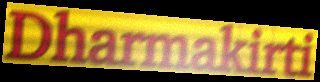
Dharmakirti